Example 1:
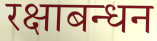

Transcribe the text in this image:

रक्षाबन्धन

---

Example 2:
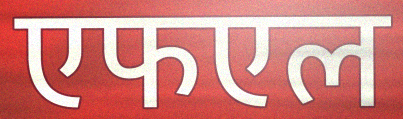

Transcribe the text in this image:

एफएल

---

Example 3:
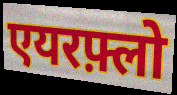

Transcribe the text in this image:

एयरफ़्लो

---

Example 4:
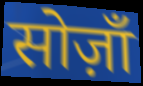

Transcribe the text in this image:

सोज़ाँ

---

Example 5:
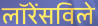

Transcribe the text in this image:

लॉरेंसविले